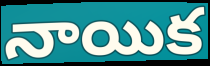
నాయిక